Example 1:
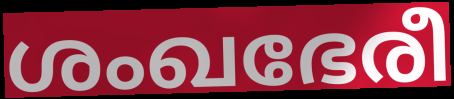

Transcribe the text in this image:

ശംഖഭേരീ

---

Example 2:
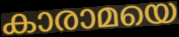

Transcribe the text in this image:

കാരാമയെ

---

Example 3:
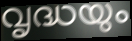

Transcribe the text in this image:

വൃദ്ധയും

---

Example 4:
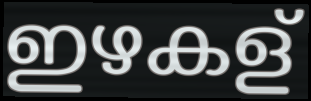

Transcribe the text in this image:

ഇഴകള്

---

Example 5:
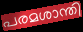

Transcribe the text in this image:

പരമശാന്തി